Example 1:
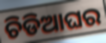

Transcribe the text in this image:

ଚିଡିଆଘର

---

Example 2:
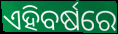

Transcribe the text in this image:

ଏହିବର୍ଷରେ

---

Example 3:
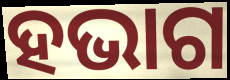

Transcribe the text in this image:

ହଭାଗ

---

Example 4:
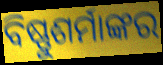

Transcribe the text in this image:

ବିଷ୍ଣୁଶର୍ମାଙ୍କର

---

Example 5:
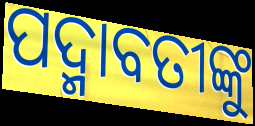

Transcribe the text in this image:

ପଦ୍ମାବତୀଙ୍କୁ